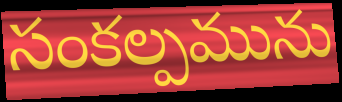
సంకల్పమును